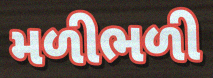
મળીભળી